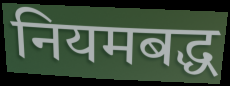
नियमबद्ध